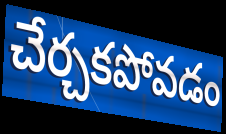
చేర్చకపోవడం